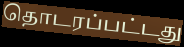
தொடரப்பட்டது